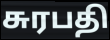
சுரபதி